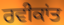
ਰਵੀਕਾਂਤ